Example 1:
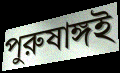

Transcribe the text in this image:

পুরুষাঙ্গই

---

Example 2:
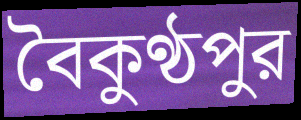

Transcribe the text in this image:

বৈকুণ্ঠপুর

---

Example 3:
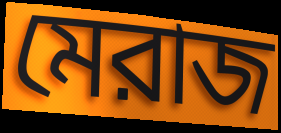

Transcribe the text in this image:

মেরাজ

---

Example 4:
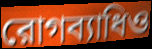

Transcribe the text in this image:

রোগব্যাধিও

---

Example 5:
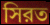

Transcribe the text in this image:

সিরত